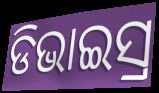
ଡିଭାଇସ୍ର